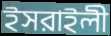
ইসরাইলী